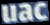
uac